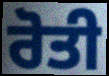
ਰੋਤੀ